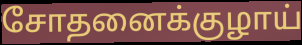
சோதனைக்குழாய்